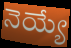
నెయ్యే